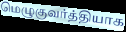
மெழுகுவர்த்தியாக